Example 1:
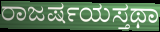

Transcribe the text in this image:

ರಾಜರ್ಷಯಸ್ತಥಾ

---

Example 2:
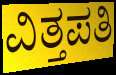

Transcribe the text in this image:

ವಿತ್ತಪತಿ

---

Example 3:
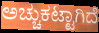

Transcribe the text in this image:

ಅಚ್ಚುಕಟ್ಟಾಗಿದೆ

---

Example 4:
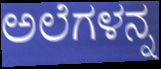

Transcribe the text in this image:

ಅಲೆಗಳನ್ನ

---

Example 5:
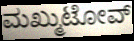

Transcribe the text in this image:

ಮಖ್ಮುಟೋವ್